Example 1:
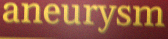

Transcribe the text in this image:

aneurysm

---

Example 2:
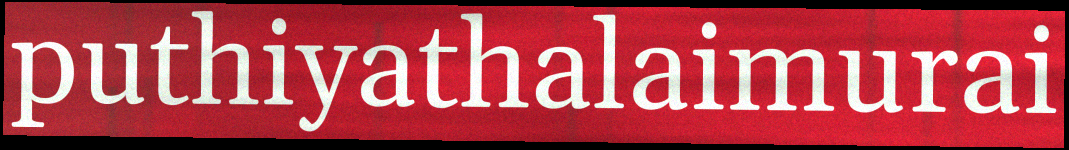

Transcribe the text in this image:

puthiyathalaimurai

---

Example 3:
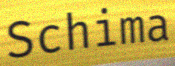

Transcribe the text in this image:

Schima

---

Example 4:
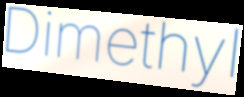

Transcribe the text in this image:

Dimethyl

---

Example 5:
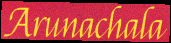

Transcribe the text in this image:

Arunachala